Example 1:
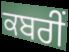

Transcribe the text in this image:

ਕਬਰੀਂ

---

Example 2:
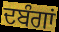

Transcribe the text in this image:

ਦਬੰਗਾਂ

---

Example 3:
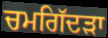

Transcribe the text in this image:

ਚਮਗਿੱਦੜਾ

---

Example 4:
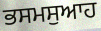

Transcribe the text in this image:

ਭਸਮਸੁਆਹ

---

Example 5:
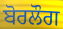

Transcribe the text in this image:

ਬੋਰਲੌਗ